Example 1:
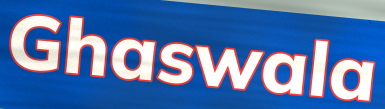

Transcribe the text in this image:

Ghaswala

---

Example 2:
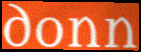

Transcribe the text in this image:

donn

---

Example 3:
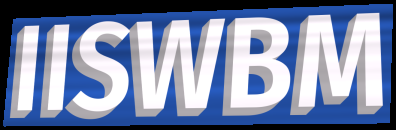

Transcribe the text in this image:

IISWBM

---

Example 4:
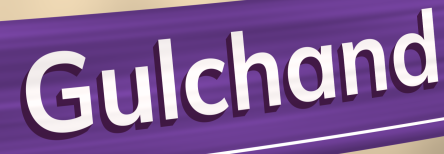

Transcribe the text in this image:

Gulchand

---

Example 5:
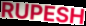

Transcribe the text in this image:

RUPESH